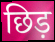
छिड़